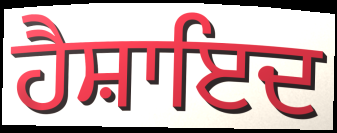
ਹੈਸ਼ਾਇਦ